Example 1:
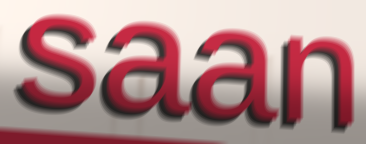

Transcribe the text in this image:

saan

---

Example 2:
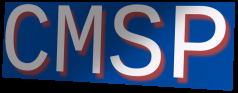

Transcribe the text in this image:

CMSP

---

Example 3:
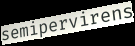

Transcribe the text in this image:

semipervirens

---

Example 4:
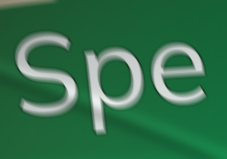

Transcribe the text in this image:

Spe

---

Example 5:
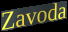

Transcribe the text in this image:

Zavoda